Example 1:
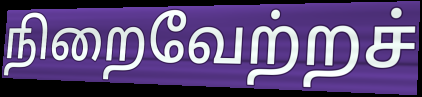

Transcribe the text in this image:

நிறைவேற்றச்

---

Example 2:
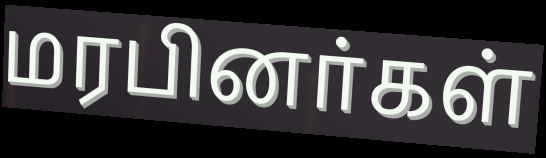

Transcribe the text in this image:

மரபினர்கள்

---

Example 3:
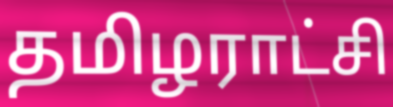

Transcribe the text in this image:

தமிழராட்சி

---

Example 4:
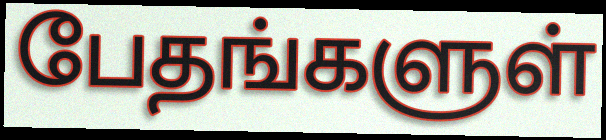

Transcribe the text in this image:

பேதங்களுள்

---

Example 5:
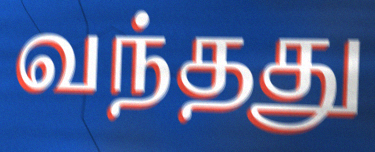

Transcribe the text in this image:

வந்தது